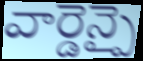
వార్డెన్పై